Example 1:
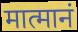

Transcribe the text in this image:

मात्मानं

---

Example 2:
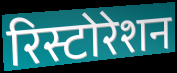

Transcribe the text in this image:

रिस्टोरेशन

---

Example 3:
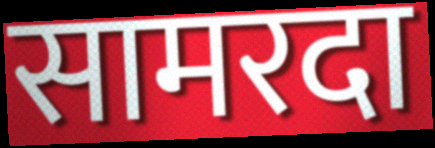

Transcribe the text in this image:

सामरदा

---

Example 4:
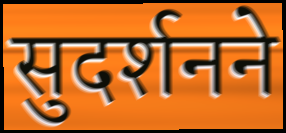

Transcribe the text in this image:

सुदर्शनने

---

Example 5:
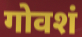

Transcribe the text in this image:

गोवशं